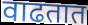
वाढतात